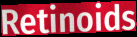
Retinoids